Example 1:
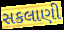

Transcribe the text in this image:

સકલાણી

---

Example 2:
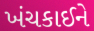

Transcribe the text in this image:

ખંચકાઈને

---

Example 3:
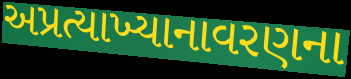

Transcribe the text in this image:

અપ્રત્યાખ્યાનાવરણના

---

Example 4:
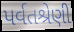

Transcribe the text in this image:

પર્વતશ્રેણી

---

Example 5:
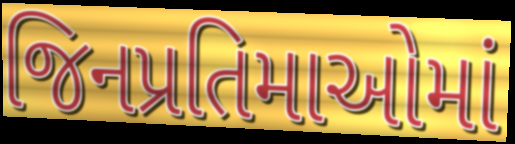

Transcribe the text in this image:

જિનપ્રતિમાઓમાં